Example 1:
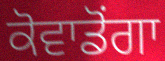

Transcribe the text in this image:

ਕੋਵਾਡੋਂਗਾ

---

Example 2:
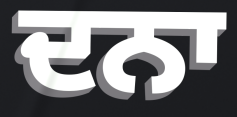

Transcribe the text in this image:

ਦਨਾ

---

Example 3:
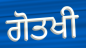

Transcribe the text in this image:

ਗੋਤਖੀ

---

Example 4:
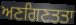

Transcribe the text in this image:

ਅਣਗਿਣਤਤਾ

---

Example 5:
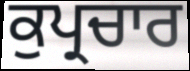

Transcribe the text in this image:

ਕੁਪ੍ਰਚਾਰ